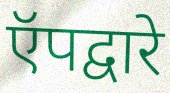
ऍपद्वारे